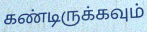
கண்டிருக்கவும்